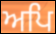
ਅਪਿ